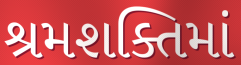
શ્રમશક્તિમાં